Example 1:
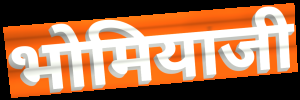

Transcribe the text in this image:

भोमियाजी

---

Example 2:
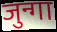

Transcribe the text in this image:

जुन्गा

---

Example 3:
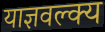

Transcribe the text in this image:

याज्ञवल्क्य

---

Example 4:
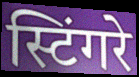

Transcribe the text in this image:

स्टिंगरे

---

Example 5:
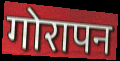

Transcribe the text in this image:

गोरापन